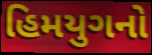
હિમયુગનો